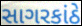
સાગરકાંઠે